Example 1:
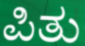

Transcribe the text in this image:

ಪಿತು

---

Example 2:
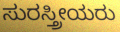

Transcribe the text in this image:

ಸುರಸ್ತ್ರೀಯರು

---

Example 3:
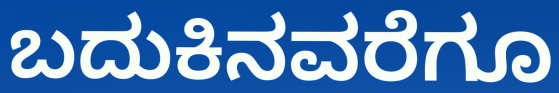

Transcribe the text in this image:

ಬದುಕಿನವರೆಗೂ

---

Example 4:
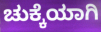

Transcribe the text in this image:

ಚುಕ್ಕೆಯಾಗಿ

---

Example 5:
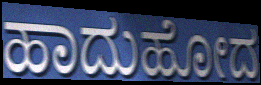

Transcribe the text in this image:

ಹಾದುಹೋದ